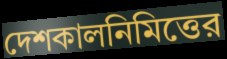
দেশকালনিমিত্তের